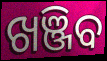
ଖଞ୍ଜିବ